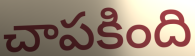
చాపకింది